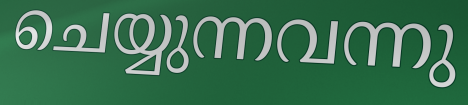
ചെയ്യുന്നവന്നു